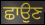
ਛਾਉਣ